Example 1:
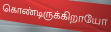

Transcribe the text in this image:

கொண்டிருக்கிறாயோ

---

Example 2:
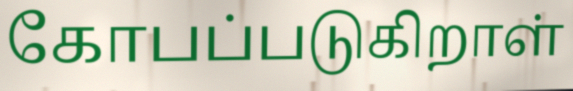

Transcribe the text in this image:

கோபப்படுகிறாள்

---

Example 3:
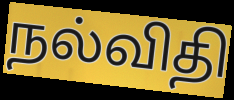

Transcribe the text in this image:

நல்விதி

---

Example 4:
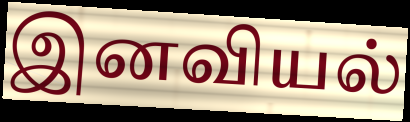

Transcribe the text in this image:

இனவியல்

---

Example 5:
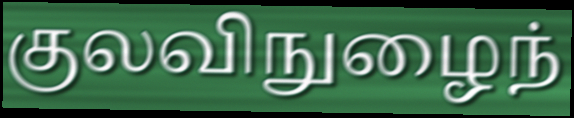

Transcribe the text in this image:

குலவிநுழைந்